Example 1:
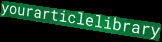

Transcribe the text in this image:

yourarticlelibrary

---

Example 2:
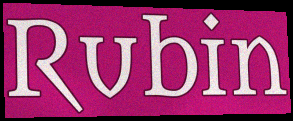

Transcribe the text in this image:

Rubin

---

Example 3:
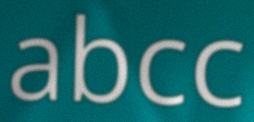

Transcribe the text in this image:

abcc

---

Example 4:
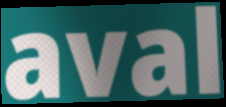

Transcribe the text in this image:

aval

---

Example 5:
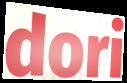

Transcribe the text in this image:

dori